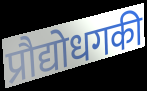
प्रौद्योधगकी